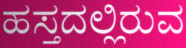
ಹಸ್ತದಲ್ಲಿರುವ